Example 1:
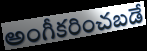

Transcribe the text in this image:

అంగీకరించబడే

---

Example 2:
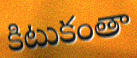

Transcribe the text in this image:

కిటుకంతా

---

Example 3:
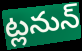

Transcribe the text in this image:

ట్లనున్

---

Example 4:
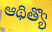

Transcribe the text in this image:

ఆథిత్యొ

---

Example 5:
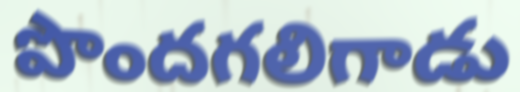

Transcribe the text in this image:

పొందగలిగాడు